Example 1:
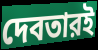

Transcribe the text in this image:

দেবতারই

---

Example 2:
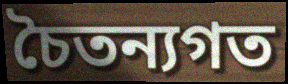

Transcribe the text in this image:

চৈতন্যগত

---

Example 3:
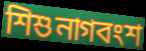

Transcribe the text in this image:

শিশুনাগবংশ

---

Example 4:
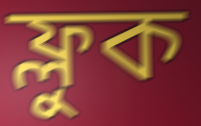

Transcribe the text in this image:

ফ্লুক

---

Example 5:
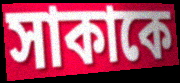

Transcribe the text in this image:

সাকাকে